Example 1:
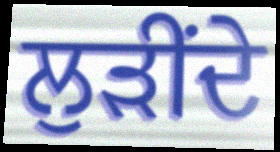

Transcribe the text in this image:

ਲੁੜੀਂਦੇ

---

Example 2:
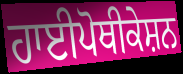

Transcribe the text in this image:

ਹਾਈਪੋਥੀਕੇਸ਼ਨ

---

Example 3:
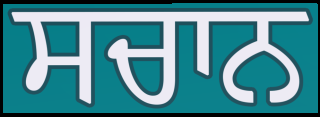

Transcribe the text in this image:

ਸਚਾਨ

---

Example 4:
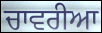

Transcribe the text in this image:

ਚਾਵਰੀਆ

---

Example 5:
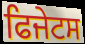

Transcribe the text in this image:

ਫਿਜੇਟਸ